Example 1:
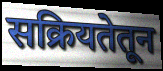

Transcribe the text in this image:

सक्रियतेतून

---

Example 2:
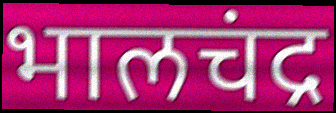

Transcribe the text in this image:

भालचंद्र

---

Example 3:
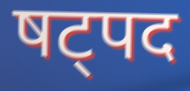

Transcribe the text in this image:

षट्पद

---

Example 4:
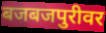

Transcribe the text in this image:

बजबजपुरीवर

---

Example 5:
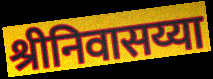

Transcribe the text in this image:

श्रीनिवासय्या